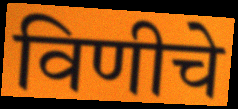
विणीचे